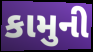
કામુની